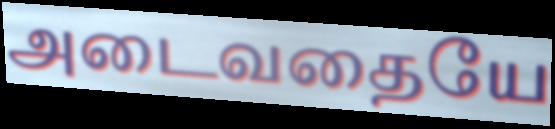
அடைவதையே